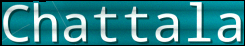
Chattala